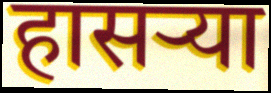
हासऱ्या